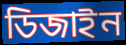
ডিজাইন